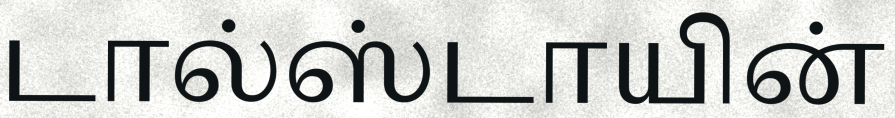
டால்ஸ்டாயின்